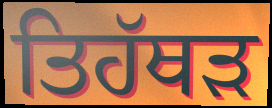
ਤਿਹੱਥੜ